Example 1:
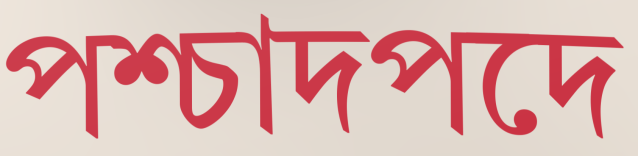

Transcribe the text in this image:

পশ্চাদপদে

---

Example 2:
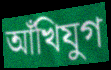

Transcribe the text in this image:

আঁখিযুগ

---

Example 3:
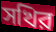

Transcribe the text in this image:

সখির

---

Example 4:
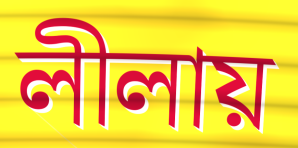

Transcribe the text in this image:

লীলায়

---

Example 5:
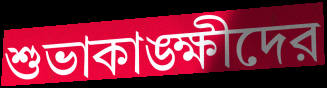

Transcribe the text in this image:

শুভাকাঙ্ক্ষীদের